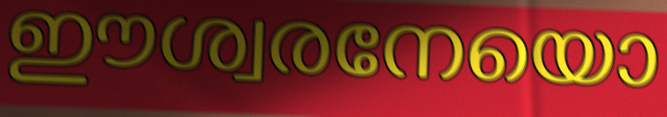
ഈശ്വരനേയൊ